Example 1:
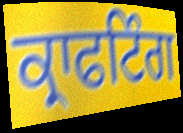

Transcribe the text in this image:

ਕ੍ਰਾਫਟਿੰਗ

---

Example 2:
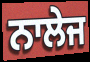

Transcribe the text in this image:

ਨਾਲੇਜ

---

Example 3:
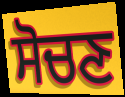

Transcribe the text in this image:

ਸੋਚਣ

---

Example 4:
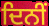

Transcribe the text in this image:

ਦਿਨੀਂ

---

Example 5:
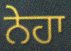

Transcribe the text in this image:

ਨੇਹਾ